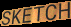
SKETCH